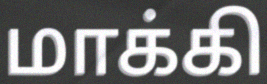
மாக்கி